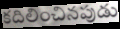
కదిలించినపుడు